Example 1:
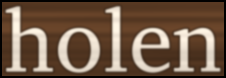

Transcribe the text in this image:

holen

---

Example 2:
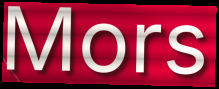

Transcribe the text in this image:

Mors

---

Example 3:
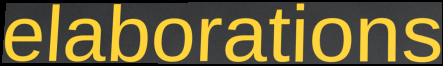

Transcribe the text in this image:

elaborations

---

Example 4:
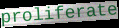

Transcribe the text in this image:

proliferate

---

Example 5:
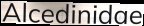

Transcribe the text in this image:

Alcedinidae